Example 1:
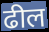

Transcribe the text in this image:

ढील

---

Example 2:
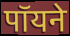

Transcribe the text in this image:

पॉयने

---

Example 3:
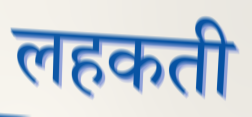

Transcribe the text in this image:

लहकती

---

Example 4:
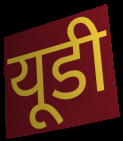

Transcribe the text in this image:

यूडी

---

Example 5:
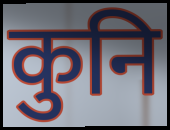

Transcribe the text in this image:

कुनि